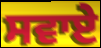
ਸਵਾਏ